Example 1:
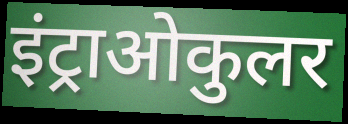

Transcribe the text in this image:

इंट्राओकुलर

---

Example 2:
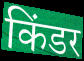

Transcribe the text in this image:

किंडर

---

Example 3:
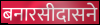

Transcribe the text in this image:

बनारसीदासने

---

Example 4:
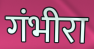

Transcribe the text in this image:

गंभीरा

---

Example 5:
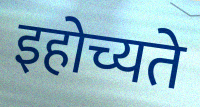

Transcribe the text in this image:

इहोच्यते